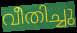
വീതിച്ചു